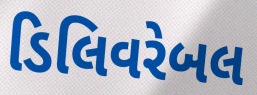
ડિલિવરેબલ